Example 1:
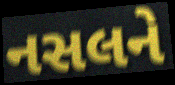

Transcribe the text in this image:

નસલને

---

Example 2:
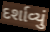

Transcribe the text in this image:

દર્શાવ્યું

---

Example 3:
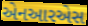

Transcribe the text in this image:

એનઆરએસ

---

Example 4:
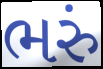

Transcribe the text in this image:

ભરું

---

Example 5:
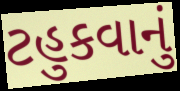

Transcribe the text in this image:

ટહુકવાનું